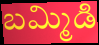
బమ్మిడి